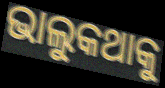
ଭାଲୁକଥାକୁ